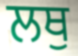
ਲਥੁ